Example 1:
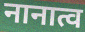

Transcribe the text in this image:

नानात्व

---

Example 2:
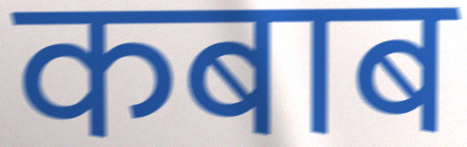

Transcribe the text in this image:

कबाब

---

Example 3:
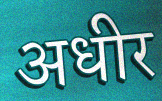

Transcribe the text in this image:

अधीर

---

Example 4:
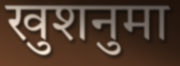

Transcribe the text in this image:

खुशनुमा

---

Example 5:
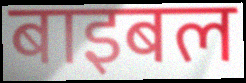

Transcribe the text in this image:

बाइबल